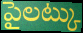
పైలట్కు